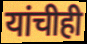
यांचीही